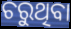
ଚରୁଥିବା